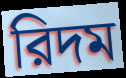
রিদম